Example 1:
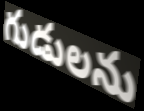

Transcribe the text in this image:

గుడులను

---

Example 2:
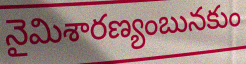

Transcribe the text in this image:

నైమిశారణ్యంబునకుం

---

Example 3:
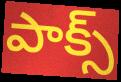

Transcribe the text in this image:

పాక్స్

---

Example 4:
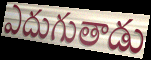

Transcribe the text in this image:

ఎదుగుతాడు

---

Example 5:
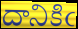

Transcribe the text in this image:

దానికిఁ